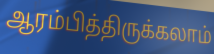
ஆரம்பித்திருக்கலாம்